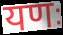
यणः